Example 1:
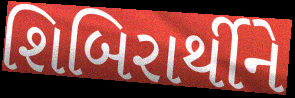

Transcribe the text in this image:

શિબિરાર્થીને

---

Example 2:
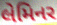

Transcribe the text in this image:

લેમિનર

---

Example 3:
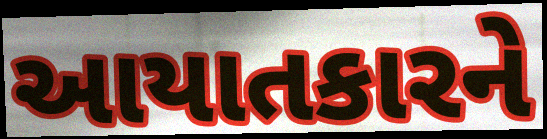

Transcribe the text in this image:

આયાતકારને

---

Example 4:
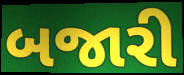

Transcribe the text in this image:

બજારી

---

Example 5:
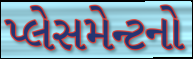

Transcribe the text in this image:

પ્લેસમેન્ટનો